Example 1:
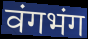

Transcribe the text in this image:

वंगभंग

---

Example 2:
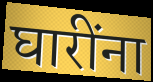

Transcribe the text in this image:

घारींना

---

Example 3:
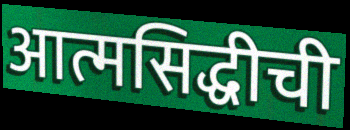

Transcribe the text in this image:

आत्मसिद्धीची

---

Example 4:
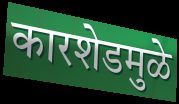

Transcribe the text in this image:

कारशेडमुळे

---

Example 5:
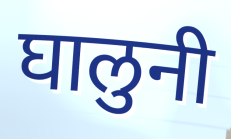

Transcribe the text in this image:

घालुनी